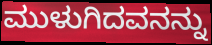
ಮುಳುಗಿದವನನ್ನು